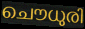
ചൌധുരി